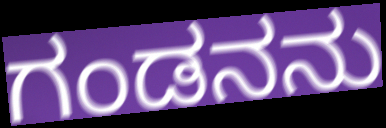
ಗಂಡನನು